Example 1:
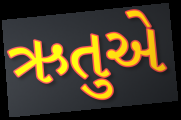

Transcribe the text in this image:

ઋતુએ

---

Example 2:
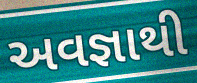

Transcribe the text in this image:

અવજ્ઞાથી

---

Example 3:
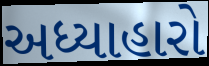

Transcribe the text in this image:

અધ્યાહારો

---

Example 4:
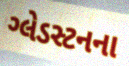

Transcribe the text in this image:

ગ્લેડસ્ટનના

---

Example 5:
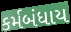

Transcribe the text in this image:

કર્મબંધાય